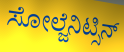
ಸೋಲ್ಜೆನಿಟ್ಸಿನ್